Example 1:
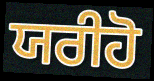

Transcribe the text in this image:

ਯਰੀਹੋ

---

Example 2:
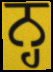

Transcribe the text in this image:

ਨ੍ਹ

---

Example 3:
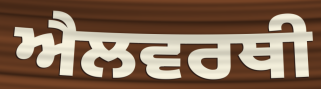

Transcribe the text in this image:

ਐਲਵਰਥੀ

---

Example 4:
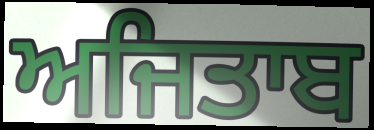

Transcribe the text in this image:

ਅਜਿਤਾਬ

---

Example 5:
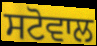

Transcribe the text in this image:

ਸਟੋਵਾਲ